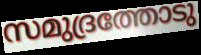
സമുദ്രത്തോടു